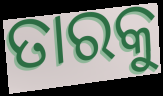
ତାରକୁ